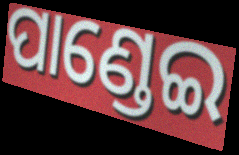
ପାଣ୍ଡେଇ